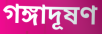
গঙ্গাদূষণ